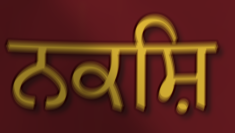
ਨਕਸ਼ਿ